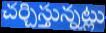
చర్చిస్తున్నట్లు